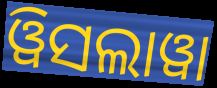
ୱିସଲାୱା